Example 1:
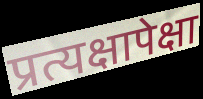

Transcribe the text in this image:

प्रत्यक्षापेक्षा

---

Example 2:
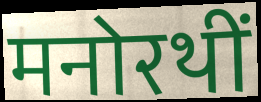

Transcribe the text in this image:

मनोरथीं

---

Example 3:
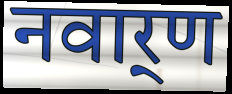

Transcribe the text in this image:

नवार्ण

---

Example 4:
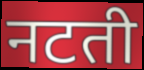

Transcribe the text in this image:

नटती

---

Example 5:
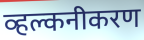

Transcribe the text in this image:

व्हल्कनीकरण